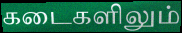
கடைகளிலும்